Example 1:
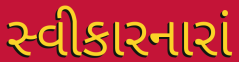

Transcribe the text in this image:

સ્વીકારનારાં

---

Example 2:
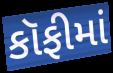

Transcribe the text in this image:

કૉફીમાં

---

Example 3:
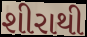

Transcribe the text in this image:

શીરાથી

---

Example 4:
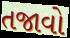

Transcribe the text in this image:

તજાવો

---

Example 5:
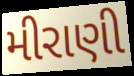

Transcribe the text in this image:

મીરાણી